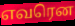
எவரென